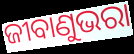
ଜୀବାଣୁଭରା